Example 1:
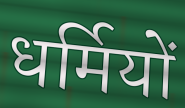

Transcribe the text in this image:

धर्मियों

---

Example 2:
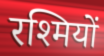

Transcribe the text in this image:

रश्मियों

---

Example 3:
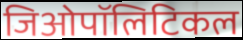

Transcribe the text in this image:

जिओपॉलिटिकल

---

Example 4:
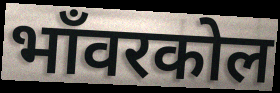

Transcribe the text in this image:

भाँवरकोल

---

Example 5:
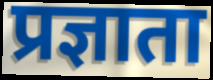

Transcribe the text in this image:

प्रज्ञाता